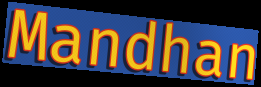
Mandhan